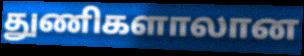
துணிகளாலான